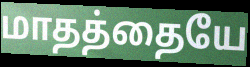
மாதத்தையே